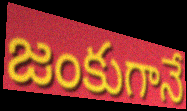
జంకుగానే